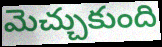
మెచ్చుకుంది